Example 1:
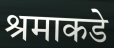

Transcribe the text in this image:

श्रमाकडे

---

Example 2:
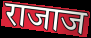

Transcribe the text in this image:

राजाज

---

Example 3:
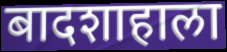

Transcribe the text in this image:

बादशाहाला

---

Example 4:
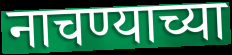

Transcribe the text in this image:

नाचण्याच्या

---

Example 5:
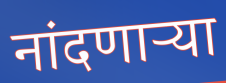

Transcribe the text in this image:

नांदणाऱ्या